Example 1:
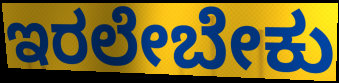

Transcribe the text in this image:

ಇರಲೇಬೇಕು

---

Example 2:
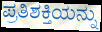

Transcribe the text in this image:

ಪ್ರತಿಶಕ್ತಿಯನ್ನು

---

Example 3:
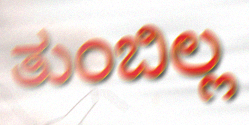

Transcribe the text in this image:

ತುಂಬಿಲ್ಲ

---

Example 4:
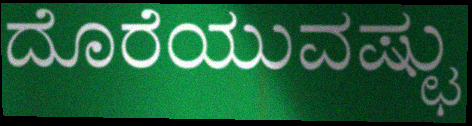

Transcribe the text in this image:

ದೊರೆಯುವಷ್ಟು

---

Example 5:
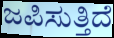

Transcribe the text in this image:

ಜಪಿಸುತ್ತಿದೆ